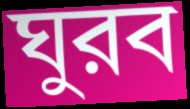
ঘুরব